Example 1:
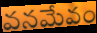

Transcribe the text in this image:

వనమేవం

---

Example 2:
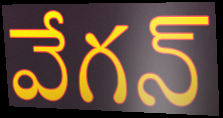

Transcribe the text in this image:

వేగన్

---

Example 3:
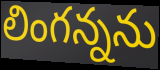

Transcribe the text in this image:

లింగన్నను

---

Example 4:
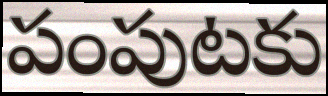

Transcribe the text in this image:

పంపుటకు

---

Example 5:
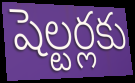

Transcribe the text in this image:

షెల్టర్లకు